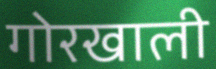
गोरखाली